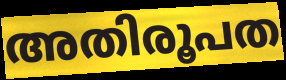
അതിരൂപത